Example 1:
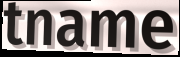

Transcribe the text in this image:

tname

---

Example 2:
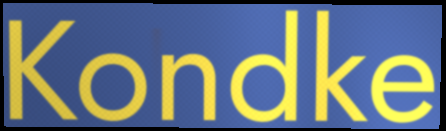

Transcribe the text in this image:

Kondke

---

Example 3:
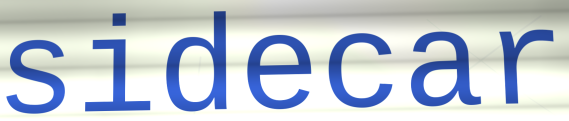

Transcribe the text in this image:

sidecar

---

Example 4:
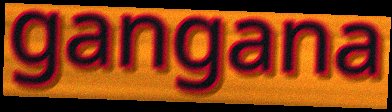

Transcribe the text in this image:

gangana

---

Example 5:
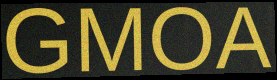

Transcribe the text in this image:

GMOA